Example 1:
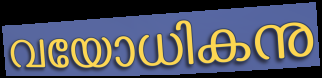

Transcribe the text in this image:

വയോധികനു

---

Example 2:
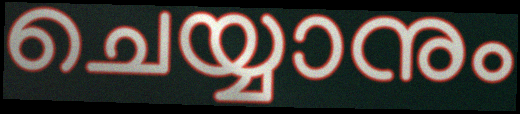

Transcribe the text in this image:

ചെയ്യാനും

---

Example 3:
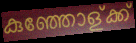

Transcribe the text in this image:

കുഞ്ഞോള്ക്ക്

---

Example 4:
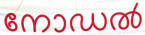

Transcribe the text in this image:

നോഡൽ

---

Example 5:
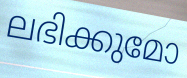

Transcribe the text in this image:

ലഭിക്കുമോ